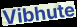
Vibhute